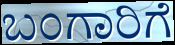
ಬಂಗಾರಿಗೆ